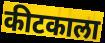
कीटकाला